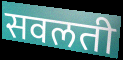
सवलती